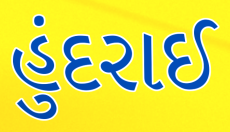
હુંદરાઈ